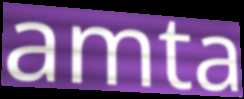
amta